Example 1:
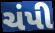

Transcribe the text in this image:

ચંપી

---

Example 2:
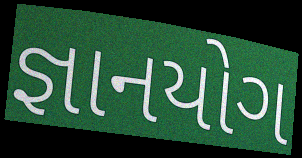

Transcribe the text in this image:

જ્ઞાનયોગ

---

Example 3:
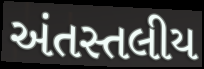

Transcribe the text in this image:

અંતસ્તલીય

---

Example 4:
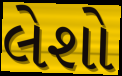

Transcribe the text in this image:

લેશો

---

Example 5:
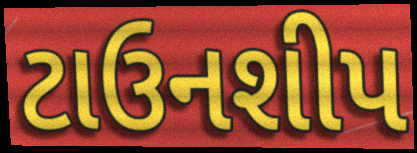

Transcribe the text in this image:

ટાઉનશીપ